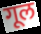
गूल